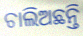
ଚାଲିଅଛନ୍ତି